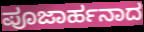
ಪೂಜಾರ್ಹನಾದ